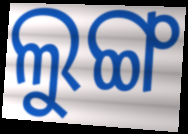
ଲୁଙ୍ଗ